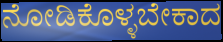
ನೋಡಿಕೊಳ್ಳಬೇಕಾದ